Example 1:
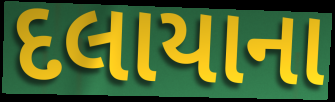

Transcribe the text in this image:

દલાયાના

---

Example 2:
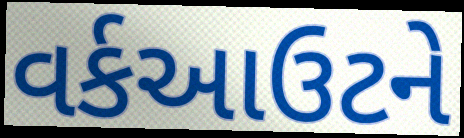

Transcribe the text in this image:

વર્કઆઉટને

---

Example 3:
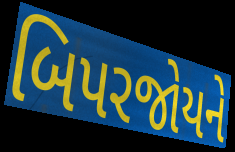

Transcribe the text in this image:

બિપરજોયને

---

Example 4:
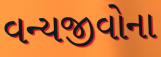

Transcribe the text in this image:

વન્યજીવોના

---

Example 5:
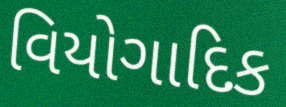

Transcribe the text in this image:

વિયોગાદિક